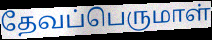
தேவப்பெருமாள்